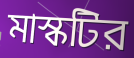
মাস্কটির